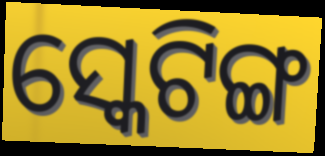
ସ୍କେଟିଙ୍ଗ